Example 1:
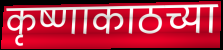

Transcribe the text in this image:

कृष्णाकाठच्या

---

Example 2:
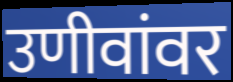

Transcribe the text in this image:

उणीवांवर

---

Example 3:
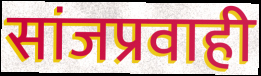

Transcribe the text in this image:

सांजप्रवाही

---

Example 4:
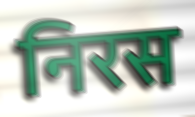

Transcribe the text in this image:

निरस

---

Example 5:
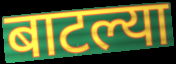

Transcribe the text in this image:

बाटल्या